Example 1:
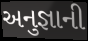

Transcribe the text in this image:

અનુજ્ઞાની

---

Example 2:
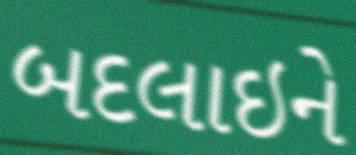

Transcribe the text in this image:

બદલાઇને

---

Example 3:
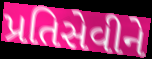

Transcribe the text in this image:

પ્રતિસેવીને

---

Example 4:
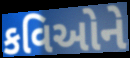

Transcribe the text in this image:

કવિઓને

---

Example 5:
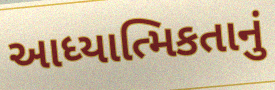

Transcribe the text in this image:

આધ્યાત્મિકતાનું